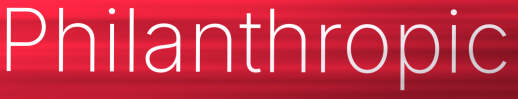
Philanthropic